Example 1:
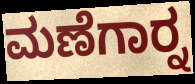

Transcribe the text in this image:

ಮಣೆಗಾರ್‍ನ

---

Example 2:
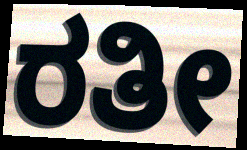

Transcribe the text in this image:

ರತೀ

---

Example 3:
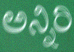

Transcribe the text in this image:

ಅನ್ನಿರಿ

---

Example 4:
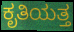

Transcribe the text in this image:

ಕೃತಿಯತ್ತ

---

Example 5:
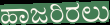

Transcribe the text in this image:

ಹಾಜರಿರಲು